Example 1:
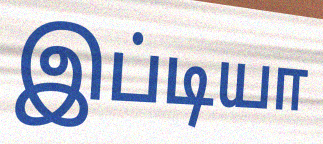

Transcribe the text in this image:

இப்டியா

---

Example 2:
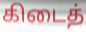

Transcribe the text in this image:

கிடைத்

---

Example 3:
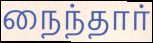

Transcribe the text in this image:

நைந்தார்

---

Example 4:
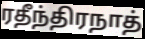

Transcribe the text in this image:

ரதீந்திரநாத்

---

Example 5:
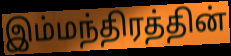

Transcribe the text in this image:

இம்மந்திரத்தின்